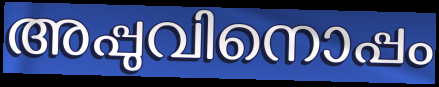
അപ്പുവിനൊപ്പം